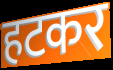
हटकर